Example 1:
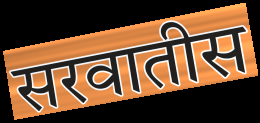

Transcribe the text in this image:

सरवातीस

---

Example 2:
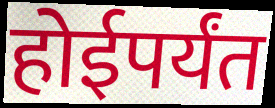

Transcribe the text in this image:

होईपर्यंत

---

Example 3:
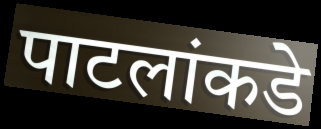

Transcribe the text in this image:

पाटलांकडे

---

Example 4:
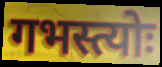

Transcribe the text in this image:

गभस्त्योः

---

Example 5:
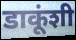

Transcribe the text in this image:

डाकूंशी